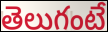
తెలుగంటే